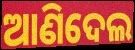
ଆଣିଦେଲ